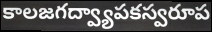
కాలజగద్వ్యాపకస్వరూప